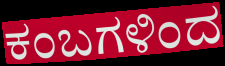
ಕಂಬಗಳಿಂದ